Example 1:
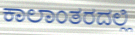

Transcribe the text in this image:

ಕಾಲಾಂತರದಲ್ಲಿ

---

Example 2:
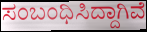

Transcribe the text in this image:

ಸಂಬಂಧಿಸಿದ್ದಾಗಿವೆ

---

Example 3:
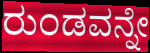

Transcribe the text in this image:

ರುಂಡವನ್ನೇ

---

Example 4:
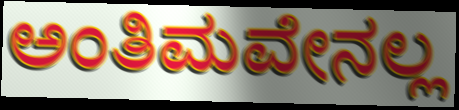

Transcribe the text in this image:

ಅಂತಿಮವೇನಲ್ಲ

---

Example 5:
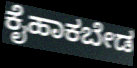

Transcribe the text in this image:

ಕೈಹಾಕಬೇಡ